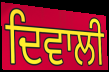
ਦਿਵਾਲੀ